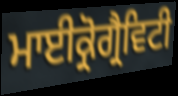
ਮਾਈਕ੍ਰੋਗ੍ਰੈਵਿਟੀ